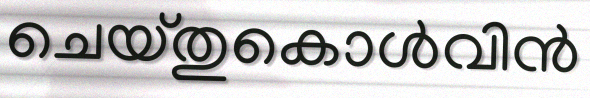
ചെയ്തുകൊൾവിൻ